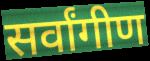
सर्वांगीण